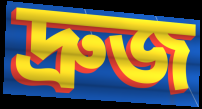
দ্রুজ